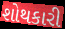
શોથકારી